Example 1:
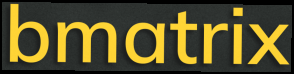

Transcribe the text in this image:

bmatrix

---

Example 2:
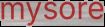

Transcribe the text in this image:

mysore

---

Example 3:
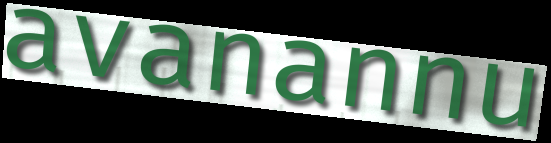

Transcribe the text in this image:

avanannu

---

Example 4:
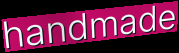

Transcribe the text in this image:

handmade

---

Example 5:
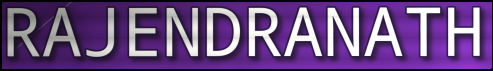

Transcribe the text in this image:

RAJENDRANATH